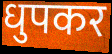
धुपकर